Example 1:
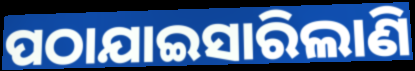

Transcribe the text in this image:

ପଠାଯାଇସାରିଲାଣି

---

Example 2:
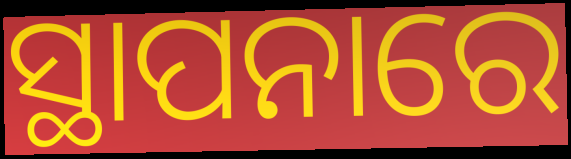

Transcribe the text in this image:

ସ୍ଥାପନାରେ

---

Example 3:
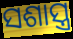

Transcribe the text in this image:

ସଶାସ୍ତ୍ର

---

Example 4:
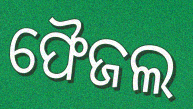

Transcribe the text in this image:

ଫୈଜଲ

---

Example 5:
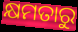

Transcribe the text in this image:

କ୍ଷମତାରୁ